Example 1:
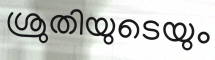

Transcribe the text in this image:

ശ്രുതിയുടെയും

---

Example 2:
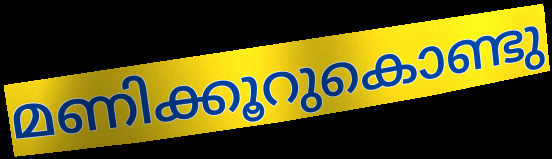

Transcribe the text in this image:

മണിക്കൂറുകൊണ്ടു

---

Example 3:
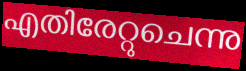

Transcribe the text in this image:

എതിരേറ്റുചെന്നു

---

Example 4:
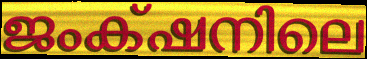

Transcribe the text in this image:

ജംക്‌ഷനിലെ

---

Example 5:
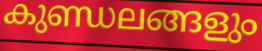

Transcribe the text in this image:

കുണ്ഡലങ്ങളും